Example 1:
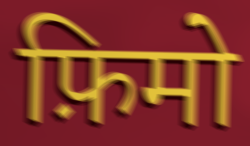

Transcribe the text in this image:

फ़िमो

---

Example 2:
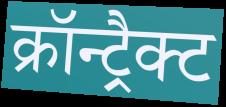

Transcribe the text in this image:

क्रॉन्ट्रैक्ट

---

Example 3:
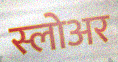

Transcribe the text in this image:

स्लोअर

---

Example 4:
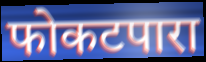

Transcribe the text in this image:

फोकटपारा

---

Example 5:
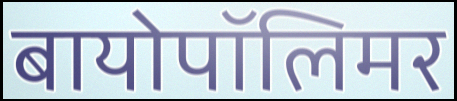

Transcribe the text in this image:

बायोपॉलिमर